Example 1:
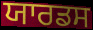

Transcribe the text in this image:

ਯਾਰਡਸ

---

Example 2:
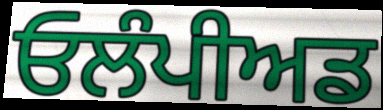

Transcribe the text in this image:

ਓਲੰਪੀਅਡ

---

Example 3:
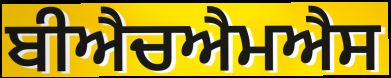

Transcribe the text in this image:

ਬੀਐਚਐਮਐਸ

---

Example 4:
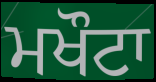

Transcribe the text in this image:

ਮਖੌਟਾ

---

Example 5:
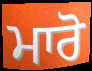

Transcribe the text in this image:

ਮਾਰੋ